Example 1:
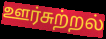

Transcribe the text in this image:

ஊர்சுற்றல்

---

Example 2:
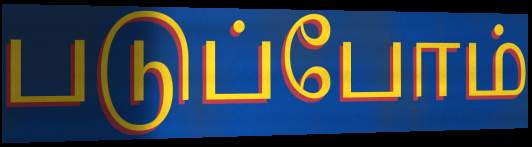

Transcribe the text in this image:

படுப்போம்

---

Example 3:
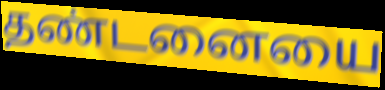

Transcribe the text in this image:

தண்டனையை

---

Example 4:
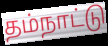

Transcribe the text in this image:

தம்நாட்டு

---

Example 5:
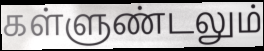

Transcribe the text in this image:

கள்ளுண்டலும்